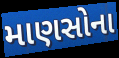
માણસોના